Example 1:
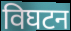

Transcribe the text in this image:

विघटन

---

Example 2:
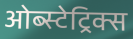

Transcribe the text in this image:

ओब्स्टेट्रिक्स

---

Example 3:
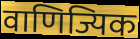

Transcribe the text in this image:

वाणिज्यिक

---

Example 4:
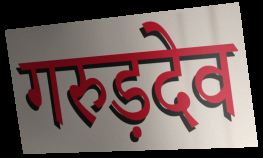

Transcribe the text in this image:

गरुड़देव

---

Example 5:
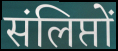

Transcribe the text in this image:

संलिप्तों